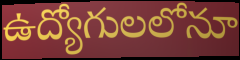
ఉద్యోగులలోనూ